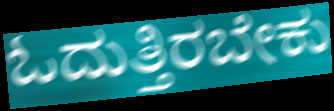
ಓದುತ್ತಿರಬೇಕು